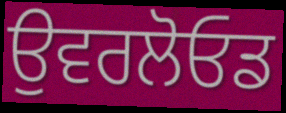
ਉਵਰਲੋਓਡ